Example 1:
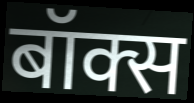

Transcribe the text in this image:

बॉक्‍स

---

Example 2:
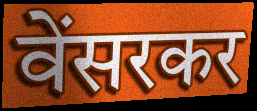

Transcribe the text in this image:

वेंसरकर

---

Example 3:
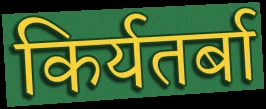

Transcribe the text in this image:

किर्यतर्बा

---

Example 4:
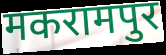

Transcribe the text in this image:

मकरामपुर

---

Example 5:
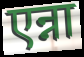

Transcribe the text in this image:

एन्ना